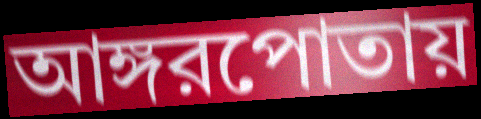
আঙ্গরপোতায়